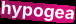
hypogea